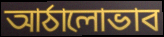
আঠালোভাব